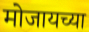
मोजायच्या